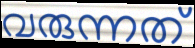
വരുന്നത്